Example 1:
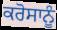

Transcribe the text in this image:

ਕਰੋਸਾਨੂੰ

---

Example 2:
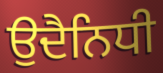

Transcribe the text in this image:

ਉਦੈਨਿਧੀ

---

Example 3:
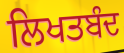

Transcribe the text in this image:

ਲਿਖਤਬੰਦ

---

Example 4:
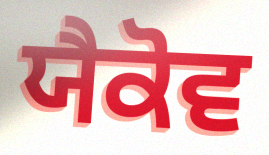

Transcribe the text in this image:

ਯੈਕੋਵ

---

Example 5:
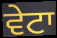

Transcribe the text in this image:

ਵੇਟਾ